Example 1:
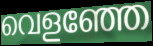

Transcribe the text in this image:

വെളഞ്ഞേ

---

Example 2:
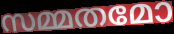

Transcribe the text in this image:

സമ്മതമോ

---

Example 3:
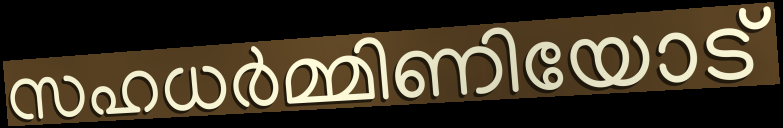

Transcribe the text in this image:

സഹധർമ്മിണിയോട്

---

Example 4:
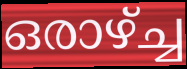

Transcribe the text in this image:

ഒരാഴ്ച്ച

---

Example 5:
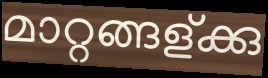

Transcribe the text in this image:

മാറ്റങ്ങള്ക്കു